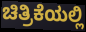
ಚಿತ್ರಿಕೆಯಲ್ಲಿ